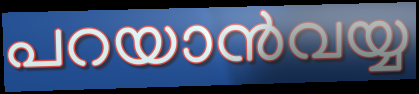
പറയാൻവയ്യ